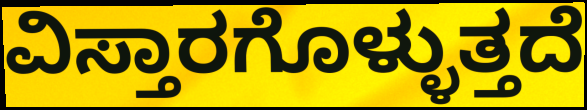
ವಿಸ್ತಾರಗೊಳ್ಳುತ್ತದೆ